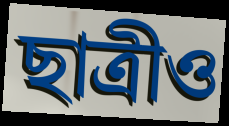
ছাত্রীও